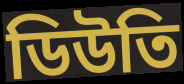
ডিউতি